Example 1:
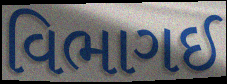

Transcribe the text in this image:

વિભાગઈ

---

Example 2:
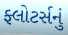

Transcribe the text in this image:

ફ્લોટર્સનું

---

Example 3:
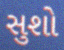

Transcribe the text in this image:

સુશો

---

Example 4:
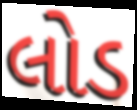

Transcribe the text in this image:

લોડ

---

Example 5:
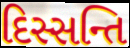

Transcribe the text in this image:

દિસ્સન્તિ